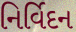
નિર્વિદન